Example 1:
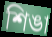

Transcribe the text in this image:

শিঙা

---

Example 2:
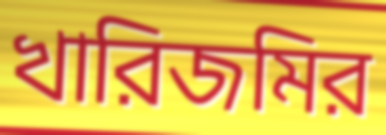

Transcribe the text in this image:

খারিজমির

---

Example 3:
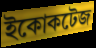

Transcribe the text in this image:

ইকোকটেজ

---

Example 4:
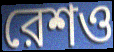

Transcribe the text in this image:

রেশও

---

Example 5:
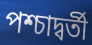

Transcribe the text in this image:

পশ্চাদ্বর্তী